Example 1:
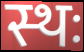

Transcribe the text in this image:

स्थः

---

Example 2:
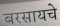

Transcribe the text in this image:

बरसायचे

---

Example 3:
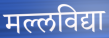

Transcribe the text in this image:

मल्लविद्या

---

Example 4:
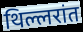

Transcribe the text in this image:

थिल्लरांत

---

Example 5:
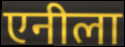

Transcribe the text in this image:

एनीला